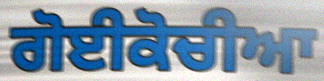
ਗੋਈਕੋਚੀਆ